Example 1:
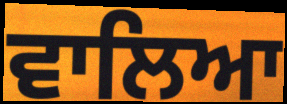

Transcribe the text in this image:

ਵਾਲਿਆ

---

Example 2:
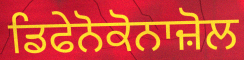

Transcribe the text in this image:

ਡਿਫੇਨੋਕੋਨਾਜ਼ੋਲ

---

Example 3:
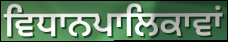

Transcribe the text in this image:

ਵਿਧਾਨਪਾਲਿਕਾਵਾਂ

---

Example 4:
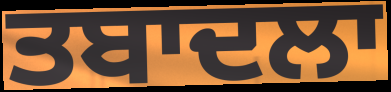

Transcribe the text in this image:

ਤਬਾਦਲਾ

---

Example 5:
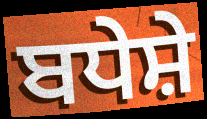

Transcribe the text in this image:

ਬਧੇਸ਼ੇ